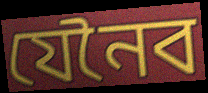
যেনৈব